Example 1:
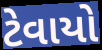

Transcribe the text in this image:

ટેવાયો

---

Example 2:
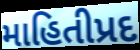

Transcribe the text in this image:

માહિતીપ્રદ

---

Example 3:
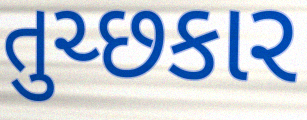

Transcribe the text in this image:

તુચ્છકાર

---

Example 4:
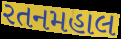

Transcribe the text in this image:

રતનમહાલ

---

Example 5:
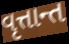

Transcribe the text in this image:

વૃત્તાન્ત